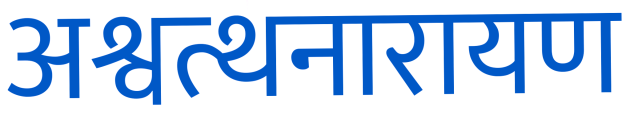
अश्वत्थनारायण